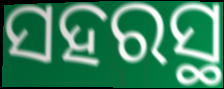
ସହରସ୍ଥ